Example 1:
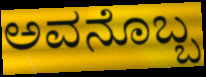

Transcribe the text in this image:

ಅವನೊಬ್ಬ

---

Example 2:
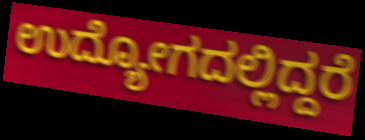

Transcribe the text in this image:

ಉದ್ಯೋಗದಲ್ಲಿದ್ದರೆ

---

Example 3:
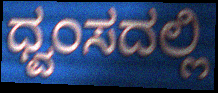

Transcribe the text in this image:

ಧ್ವಂಸದಲ್ಲಿ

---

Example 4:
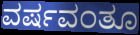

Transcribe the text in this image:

ವರ್ಷವಂತೂ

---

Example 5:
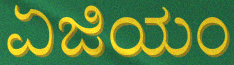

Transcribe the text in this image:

ಏಜಿಯಂ